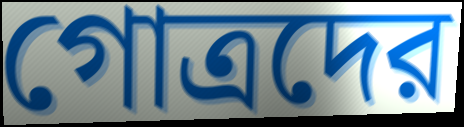
গোত্রদের